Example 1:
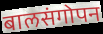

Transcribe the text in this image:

बालसंगोपन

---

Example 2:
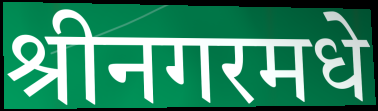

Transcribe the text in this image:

श्रीनगरमधे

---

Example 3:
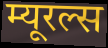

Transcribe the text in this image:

म्यूरल्स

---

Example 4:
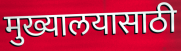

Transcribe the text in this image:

मुख्यालयासाठी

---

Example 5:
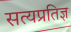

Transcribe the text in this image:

सत्यप्रतिज्ञ